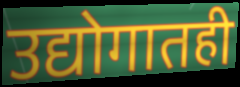
उद्योगातही